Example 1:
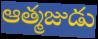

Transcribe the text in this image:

ఆత్మజుడు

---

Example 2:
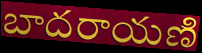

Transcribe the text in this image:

బాదరాయణి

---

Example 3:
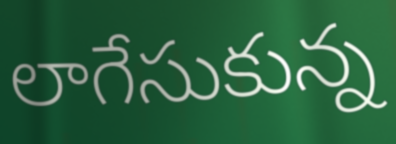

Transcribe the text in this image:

లాగేసుకున్న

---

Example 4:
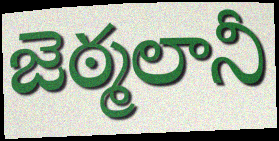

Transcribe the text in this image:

జెఠ్మలానీ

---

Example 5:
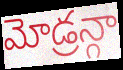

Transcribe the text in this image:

మోడ్రన్గా